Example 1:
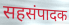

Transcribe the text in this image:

सहसंपादक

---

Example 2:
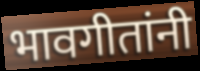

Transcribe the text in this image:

भावगीतांनी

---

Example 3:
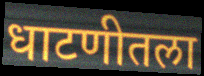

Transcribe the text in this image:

धाटणीतला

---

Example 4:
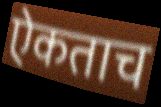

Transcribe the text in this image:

ऐकताच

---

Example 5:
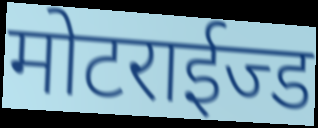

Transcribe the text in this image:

मोटराईज्ड